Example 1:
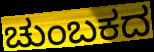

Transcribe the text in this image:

ಚುಂಬಕದ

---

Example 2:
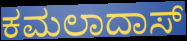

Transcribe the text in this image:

ಕಮಲಾದಾಸ್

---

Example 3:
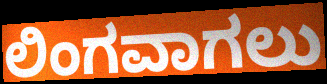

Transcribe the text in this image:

ಲಿಂಗವಾಗಲು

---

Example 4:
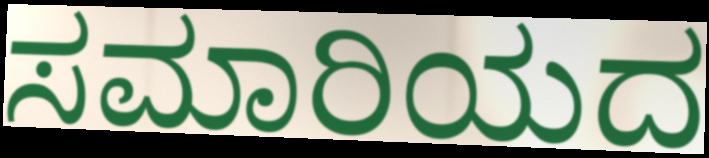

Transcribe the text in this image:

ಸಮಾರಿಯದ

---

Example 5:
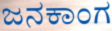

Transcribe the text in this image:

ಜನಕಾಂಗ